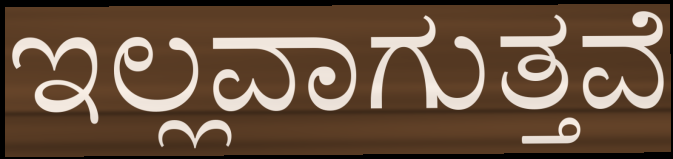
ಇಲ್ಲವಾಗುತ್ತವೆ